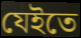
যেইতে